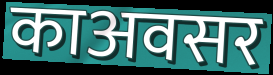
काअवसर